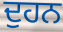
ਦੁਹਨ